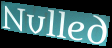
Nulled